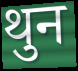
थुन